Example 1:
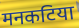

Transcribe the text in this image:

मनकटिया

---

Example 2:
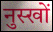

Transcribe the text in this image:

नुस्‍खों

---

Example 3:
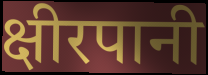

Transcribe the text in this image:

क्षीरपानी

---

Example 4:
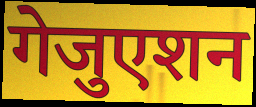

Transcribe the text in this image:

गेजुएशन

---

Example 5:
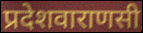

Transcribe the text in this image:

प्रदेशवाराणसी